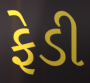
ફેડી